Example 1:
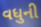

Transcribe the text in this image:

વધુની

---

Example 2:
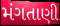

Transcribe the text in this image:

મંગતાણી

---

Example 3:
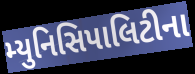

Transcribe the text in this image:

મ્યુનિસિપાલિટીના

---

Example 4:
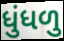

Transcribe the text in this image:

ધુંધળુ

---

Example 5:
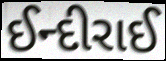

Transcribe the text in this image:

ઈન્દીરાઈ